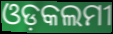
ଓଡ଼କଲମୀ